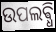
ଉପଲଵ୍ଧି